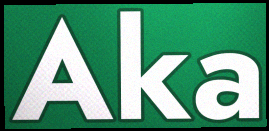
Aka